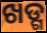
ଖଡ୍ଗ